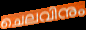
ചെലവിനും